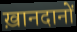
ख़ानदानों